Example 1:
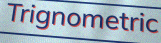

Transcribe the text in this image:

Trignometric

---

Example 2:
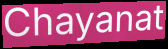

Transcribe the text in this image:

Chayanat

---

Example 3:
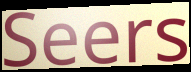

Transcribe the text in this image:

Seers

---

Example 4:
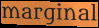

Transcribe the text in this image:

marginal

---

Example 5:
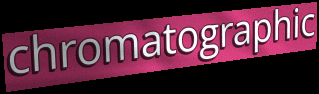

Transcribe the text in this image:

chromatographic